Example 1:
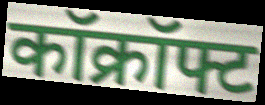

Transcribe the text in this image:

कॉक्रॉफ्ट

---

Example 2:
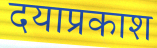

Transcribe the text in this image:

दयाप्रकाश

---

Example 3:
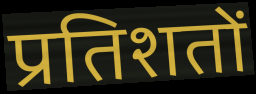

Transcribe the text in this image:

प्रतिशतों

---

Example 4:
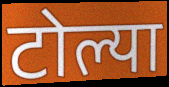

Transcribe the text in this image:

टोल्या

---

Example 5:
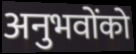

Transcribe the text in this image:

अनुभवोंको